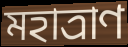
মহাত্রাণ